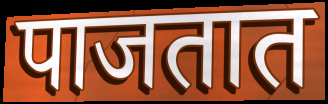
पाजतात